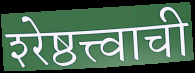
श्रेष्ठत्त्वाची